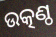
ଉତ୍କଣ୍ଠ